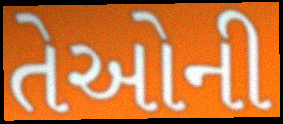
તેઓની